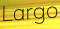
Largo